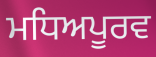
ਮਧਿਅਪੂਰਵ